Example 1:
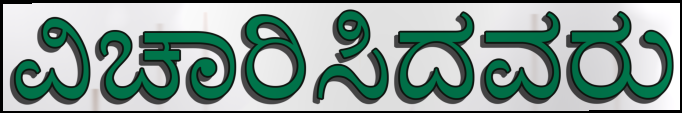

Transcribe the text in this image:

ವಿಚಾರಿಸಿದವರು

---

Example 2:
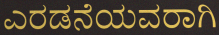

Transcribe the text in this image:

ಎರಡನೆಯವರಾಗಿ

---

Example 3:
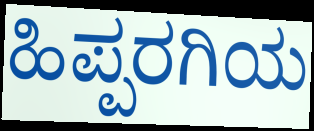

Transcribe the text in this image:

ಹಿಪ್ಪರಗಿಯ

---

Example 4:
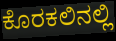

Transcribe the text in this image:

ಕೊರಕಲಿನಲ್ಲಿ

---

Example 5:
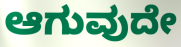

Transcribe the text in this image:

ಆಗುವುದೇ